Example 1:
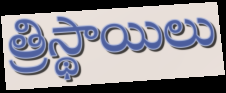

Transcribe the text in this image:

త్రిస్థాయిలు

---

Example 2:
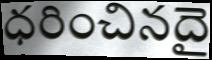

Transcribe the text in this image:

ధరించినదై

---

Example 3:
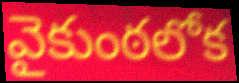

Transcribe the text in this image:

వైకుంఠలోక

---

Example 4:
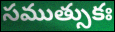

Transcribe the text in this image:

సముత్సుకః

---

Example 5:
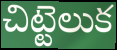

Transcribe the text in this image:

చిట్టెలుక